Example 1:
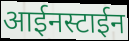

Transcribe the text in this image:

आईनस्टाईन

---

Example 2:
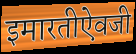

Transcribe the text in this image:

इमारतीऐवजी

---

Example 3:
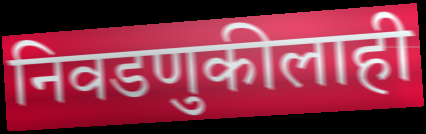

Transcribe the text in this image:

निवडणुकीलाही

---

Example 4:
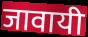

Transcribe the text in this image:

जावायी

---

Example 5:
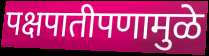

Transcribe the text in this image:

पक्षपातीपणामुळे